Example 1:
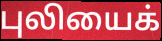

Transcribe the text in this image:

புலியைக்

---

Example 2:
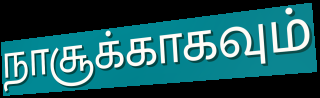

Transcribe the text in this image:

நாசூக்காகவும்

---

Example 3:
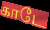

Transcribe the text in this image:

காடே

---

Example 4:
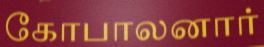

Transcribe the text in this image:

கோபாலனார்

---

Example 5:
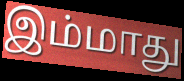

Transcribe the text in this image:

இம்மாது